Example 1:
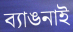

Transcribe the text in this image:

ব্যাঙনাই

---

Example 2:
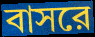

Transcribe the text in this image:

বাসরে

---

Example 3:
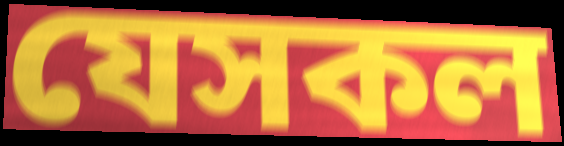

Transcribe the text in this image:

যেসকল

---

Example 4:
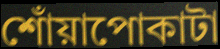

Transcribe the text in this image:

শোঁয়াপোকাটা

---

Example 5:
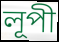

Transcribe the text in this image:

লূপী